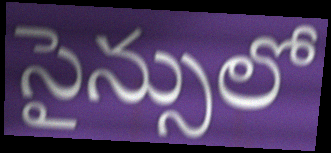
సైన్సులో